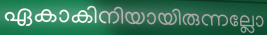
ഏകാകിനിയായിരുന്നല്ലോ